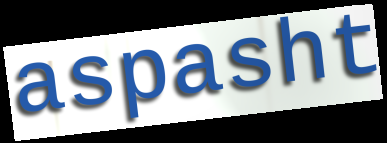
aspasht